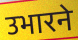
उभारने